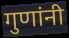
गुणांनी